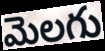
మెలగు